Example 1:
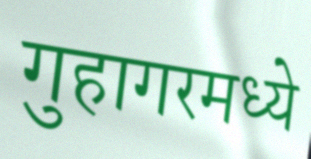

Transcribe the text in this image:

गुहागरमध्ये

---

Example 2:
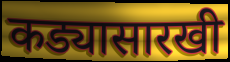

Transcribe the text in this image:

कड्यासारखी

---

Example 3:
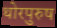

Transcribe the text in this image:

थोरपुरुष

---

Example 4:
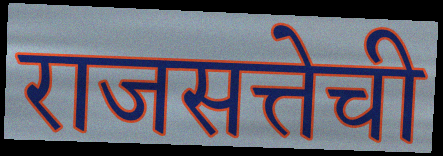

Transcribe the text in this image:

राजसत्तेची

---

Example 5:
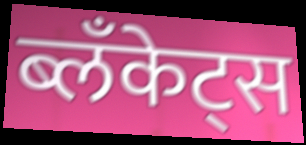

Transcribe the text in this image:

ब्लॅंकेट्स